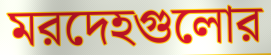
মরদেহগুলোর